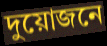
দুয়োজনে